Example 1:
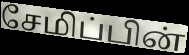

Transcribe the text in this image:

சேமிப்பின்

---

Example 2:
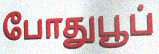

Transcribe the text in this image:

போதுபூப்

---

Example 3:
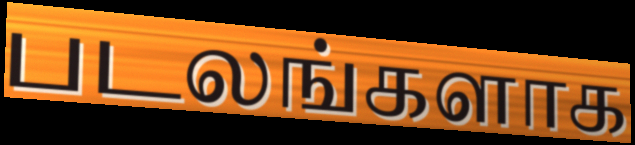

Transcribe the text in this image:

படலங்களாக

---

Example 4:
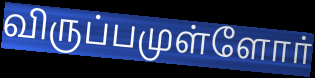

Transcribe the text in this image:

விருப்பமுள்ளோர்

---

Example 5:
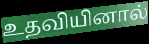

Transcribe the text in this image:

உதவியினால்